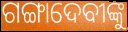
ଗଙ୍ଗାଦେବୀଙ୍କୁ